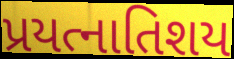
પ્રયત્નાતિશય